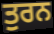
ਤੁਰਨ